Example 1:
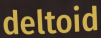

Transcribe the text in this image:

deltoid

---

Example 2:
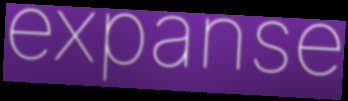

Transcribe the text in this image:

expanse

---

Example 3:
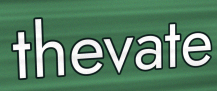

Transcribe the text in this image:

thevate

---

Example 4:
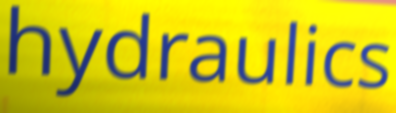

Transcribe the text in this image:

hydraulics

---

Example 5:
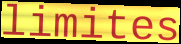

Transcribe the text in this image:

limites